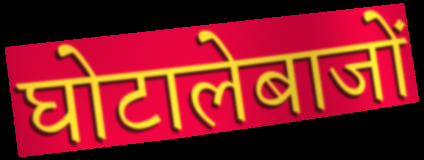
घोटालेबाजों